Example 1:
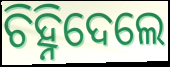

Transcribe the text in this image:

ଚିହ୍ନିଦେଲେ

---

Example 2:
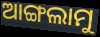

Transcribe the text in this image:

ଆଙ୍ଗଲାମୁ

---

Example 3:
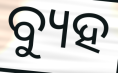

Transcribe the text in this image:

ବ୍ୟୁହ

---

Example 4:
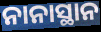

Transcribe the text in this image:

ନାନାସ୍ଥାନ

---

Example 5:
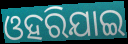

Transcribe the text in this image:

ଓହରିଯାଇ